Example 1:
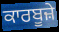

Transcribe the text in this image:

ਕਾਰਬੂਜ਼ੇ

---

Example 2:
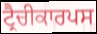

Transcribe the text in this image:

ਟ੍ਰੈਚੀਕਾਰਪਸ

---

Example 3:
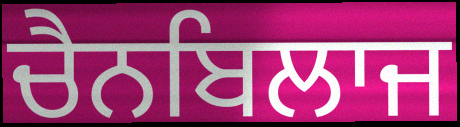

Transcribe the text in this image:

ਚੈਨਬਿਲਾਜ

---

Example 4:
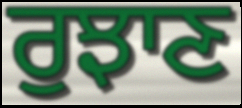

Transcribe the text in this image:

ਰੁਝਾਣ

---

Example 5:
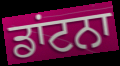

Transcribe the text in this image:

ਡਾਂਟਨਾ